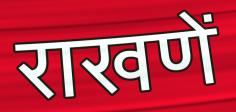
राखणें